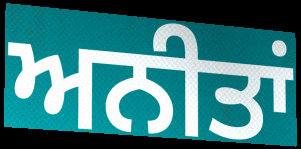
ਅਨੀਤਾਂ